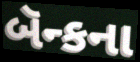
બૅન્કના